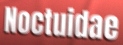
Noctuidae